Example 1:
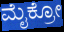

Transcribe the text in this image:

ಮೈಕ್ರೋ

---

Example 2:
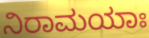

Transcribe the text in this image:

ನಿರಾಮಯಾಃ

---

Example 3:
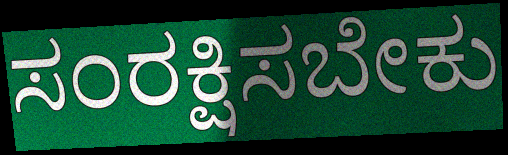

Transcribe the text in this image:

ಸಂರಕ್ಷಿಸಬೇಕು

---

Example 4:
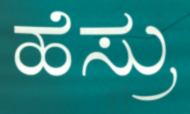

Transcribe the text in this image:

ಹೆಸ್ರು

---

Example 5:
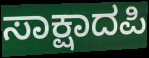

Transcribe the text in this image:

ಸಾಕ್ಷಾದಪಿ